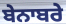
ਬੇਨਾਬਰੇ